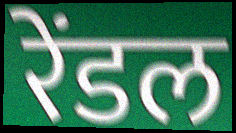
रेंडल